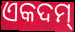
ଏକଦମ୍